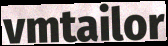
vmtailor